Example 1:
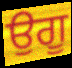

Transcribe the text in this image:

ਉਗੂ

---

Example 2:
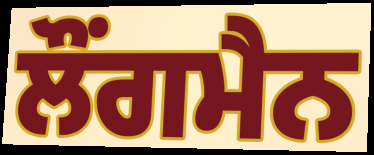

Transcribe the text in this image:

ਲੌਂਗਮੈਨ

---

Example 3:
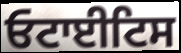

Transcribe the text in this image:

ਓਟਾਈਟਿਸ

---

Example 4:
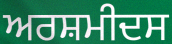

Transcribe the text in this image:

ਅਰਸ਼ਮੀਦਸ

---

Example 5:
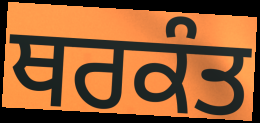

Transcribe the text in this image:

ਥਰਕੰਤ